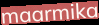
maarmika